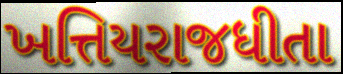
ખત્તિયરાજધીતા